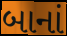
બાનાં